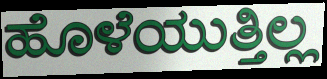
ಹೊಳೆಯುತ್ತಿಲ್ಲ